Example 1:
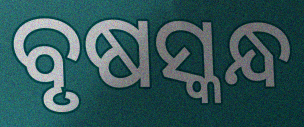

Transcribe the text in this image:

ବୃଷସ୍କନ୍ଧ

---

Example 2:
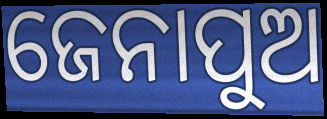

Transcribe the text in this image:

ଜେନାପୁଅ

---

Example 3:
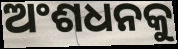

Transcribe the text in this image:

ଅଂଶଧନକୁ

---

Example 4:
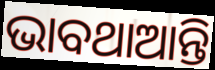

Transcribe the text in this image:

ଭାବଥାଆନ୍ତି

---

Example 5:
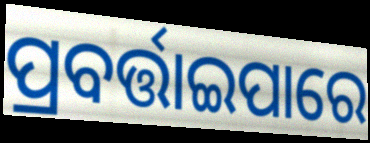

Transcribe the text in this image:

ପ୍ରବର୍ତ୍ତାଇପାରେ